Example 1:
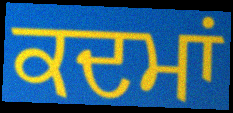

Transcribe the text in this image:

ਕਦਮਾਂ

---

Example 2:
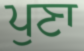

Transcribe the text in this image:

ਪੁਣਾ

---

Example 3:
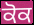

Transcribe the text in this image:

ਕੋਕ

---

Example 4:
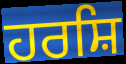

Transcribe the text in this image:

ਹਰਸ਼ਿ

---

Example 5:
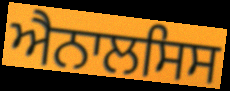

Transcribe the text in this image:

ਐਨਾਲਸਿਸ